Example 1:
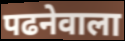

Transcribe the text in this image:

पढनेवाला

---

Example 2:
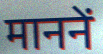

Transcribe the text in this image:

माननें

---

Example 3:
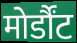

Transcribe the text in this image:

मोर्डौंट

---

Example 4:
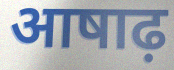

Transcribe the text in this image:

आषाढ़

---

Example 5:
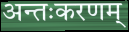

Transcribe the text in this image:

अन्तःकरणम्